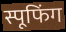
स्पूफिंग